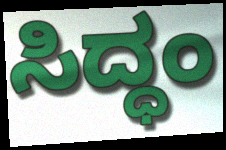
ಸಿದ್ಧಂ